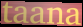
taana